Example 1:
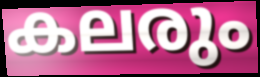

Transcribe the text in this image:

കലരും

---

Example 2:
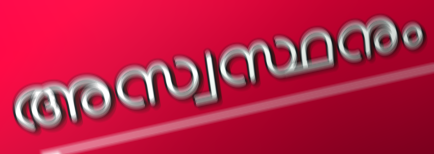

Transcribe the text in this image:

അസ്വസ്ഥനും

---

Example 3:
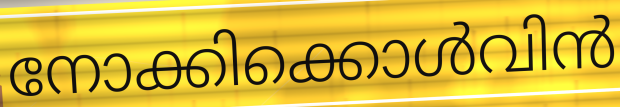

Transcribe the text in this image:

നോക്കിക്കൊൾവിൻ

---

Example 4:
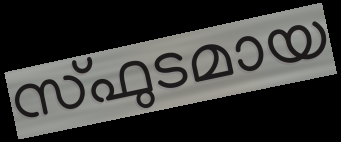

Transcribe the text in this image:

സ്ഫുടമായ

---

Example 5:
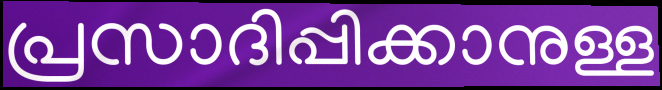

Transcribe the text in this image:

പ്രസാദിപ്പിക്കാനുള്ള